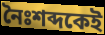
নৈঃশব্দকেই